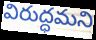
విరుద్ధమని